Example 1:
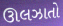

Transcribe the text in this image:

ઊલઝાતો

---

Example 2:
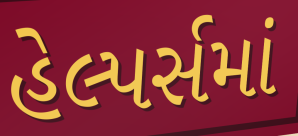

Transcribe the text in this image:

હેલ્પર્સમાં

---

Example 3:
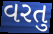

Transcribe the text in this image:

વરતુ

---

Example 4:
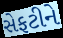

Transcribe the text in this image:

સેફટીને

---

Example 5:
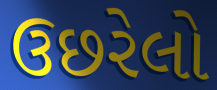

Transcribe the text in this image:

ઉછરેલો